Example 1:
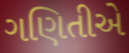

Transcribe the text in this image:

ગણિતીએ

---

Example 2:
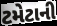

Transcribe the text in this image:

ટમેટાની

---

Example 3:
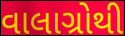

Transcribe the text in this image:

વાલાગ્રોથી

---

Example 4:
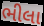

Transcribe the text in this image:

ભીલા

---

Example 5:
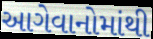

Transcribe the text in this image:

આગેવાનોમાંથી